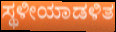
ಸ್ಥಳೀಯಾಡಳಿತ